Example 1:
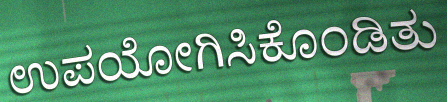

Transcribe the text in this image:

ಉಪಯೋಗಿಸಿಕೊಂಡಿತು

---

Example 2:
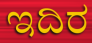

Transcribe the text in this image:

ಇದಿರ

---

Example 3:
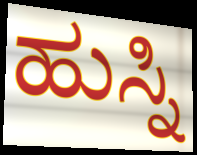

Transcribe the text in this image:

ಹುಸ್ನಿ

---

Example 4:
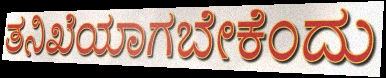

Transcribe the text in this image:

ತನಿಖೆಯಾಗಬೇಕೆಂದು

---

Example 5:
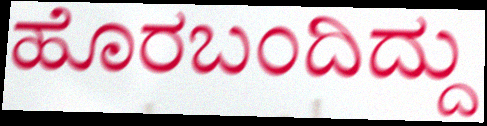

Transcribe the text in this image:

ಹೊರಬಂದಿದ್ದು